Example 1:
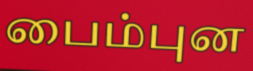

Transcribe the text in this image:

பைம்புன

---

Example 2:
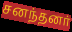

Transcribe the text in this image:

சனந்தனர்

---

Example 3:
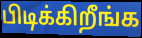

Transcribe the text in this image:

பிடிக்கிறீங்க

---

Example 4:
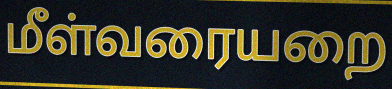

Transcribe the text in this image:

மீள்வரையறை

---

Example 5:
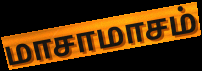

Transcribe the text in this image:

மாசாமாசம்